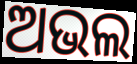
ଅଭଲ